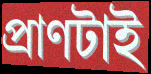
প্রাণটাই